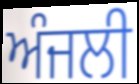
ਅੰਜਲੀ